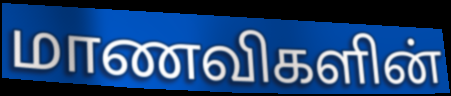
மாணவிகளின்